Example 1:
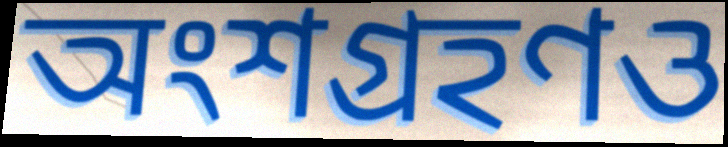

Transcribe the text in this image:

অংশগ্রহণও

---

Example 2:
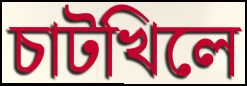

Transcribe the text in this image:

চাটখিলে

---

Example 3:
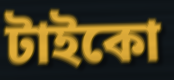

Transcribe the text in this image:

টাইকো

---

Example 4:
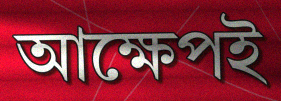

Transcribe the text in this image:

আক্ষেপই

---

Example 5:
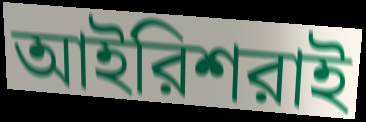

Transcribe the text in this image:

আইরিশরাই